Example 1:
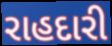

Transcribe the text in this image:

રાહદારી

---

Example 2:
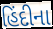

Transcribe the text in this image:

હિંદીના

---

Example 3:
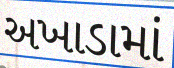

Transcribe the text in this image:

અખાડામાં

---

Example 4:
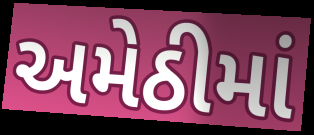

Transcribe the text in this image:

અમેઠીમાં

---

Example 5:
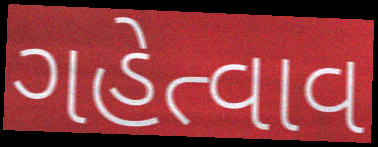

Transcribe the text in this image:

ગહેત્વાવ